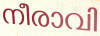
നീരാവി